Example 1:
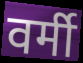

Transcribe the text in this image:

वर्मी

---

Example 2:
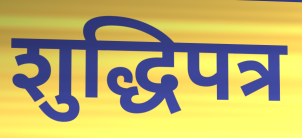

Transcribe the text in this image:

शुद्धिपत्र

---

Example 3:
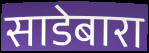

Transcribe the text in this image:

साडेबारा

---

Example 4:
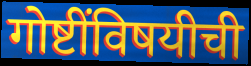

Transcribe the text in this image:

गोष्टींविषयीची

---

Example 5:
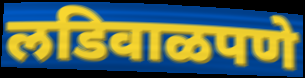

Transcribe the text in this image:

लडिवाळपणे